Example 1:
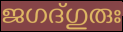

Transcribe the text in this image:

ജഗദ്ഗുരുഃ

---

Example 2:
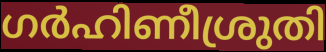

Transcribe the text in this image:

ഗർഹിണീശ്രുതി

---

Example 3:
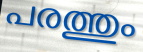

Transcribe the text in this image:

പരത്തും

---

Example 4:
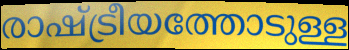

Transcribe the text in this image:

രാഷ്ട്രീയത്തോടുള്ള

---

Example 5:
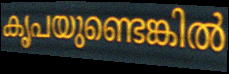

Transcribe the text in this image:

കൃപയുണ്ടെങ്കിൽ